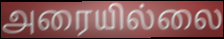
அரையில்லை